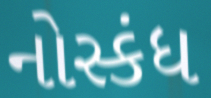
નોસ્કંધ